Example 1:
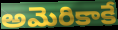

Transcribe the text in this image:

అమెరికాకే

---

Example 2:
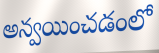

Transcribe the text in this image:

అన్వయించడంలో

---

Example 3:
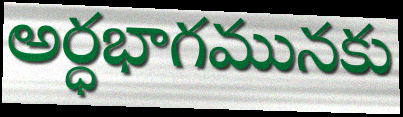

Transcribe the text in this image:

అర్ధభాగమునకు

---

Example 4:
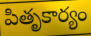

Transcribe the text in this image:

పితృకార్యం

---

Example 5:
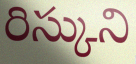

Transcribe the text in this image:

రిస్కుని